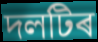
দলটিৰ